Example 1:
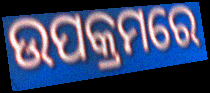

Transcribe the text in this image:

ଉପକ୍ରମରେ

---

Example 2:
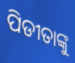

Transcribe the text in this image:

ପିଡୀତାଙ୍କୁ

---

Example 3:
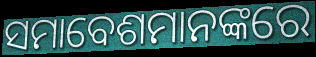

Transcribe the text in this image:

ସମାବେଶମାନଙ୍କରେ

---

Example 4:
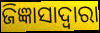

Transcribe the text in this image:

ଜିଜ୍ଞାସାଦ୍ୱାରା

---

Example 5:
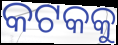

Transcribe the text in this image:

କଟକକୁ